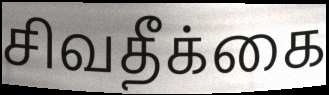
சிவதீக்கை